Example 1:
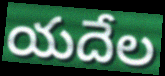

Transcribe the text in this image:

యదేల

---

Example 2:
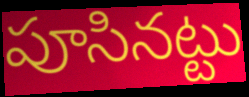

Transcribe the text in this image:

పూసినట్టు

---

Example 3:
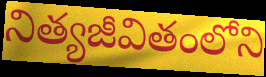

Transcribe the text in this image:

నిత్యజీవితంలోని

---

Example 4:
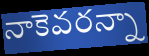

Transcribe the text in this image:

నాకెవరన్నా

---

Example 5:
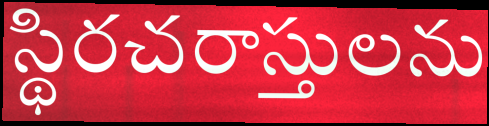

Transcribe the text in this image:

స్థిరచరాస్తులను